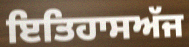
ਇਤਿਹਾਸਅੱਜ